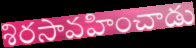
శిరసావహించాడు